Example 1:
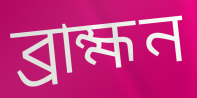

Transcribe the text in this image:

ব্ৰাহ্মন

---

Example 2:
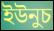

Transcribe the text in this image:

ইউনুচ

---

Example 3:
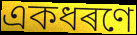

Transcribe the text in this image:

একধৰণে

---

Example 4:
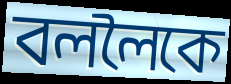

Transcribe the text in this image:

বললৈকে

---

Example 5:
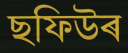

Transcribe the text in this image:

ছফিউৰ